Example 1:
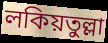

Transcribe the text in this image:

লকিয়তুল্লা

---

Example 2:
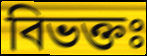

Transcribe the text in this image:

বিভক্তঃ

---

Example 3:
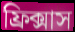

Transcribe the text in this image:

ফ্রিক্সাস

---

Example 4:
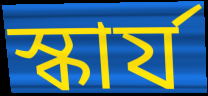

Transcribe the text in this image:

স্কার্য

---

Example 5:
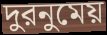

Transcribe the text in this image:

দুরনুমেয়